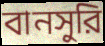
বানসুরি